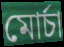
মোর্চা